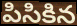
పిసికిన